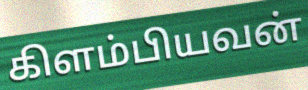
கிளம்பியவன்